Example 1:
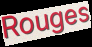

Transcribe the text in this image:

Rouges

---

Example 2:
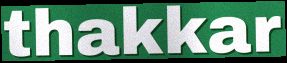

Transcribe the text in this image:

thakkar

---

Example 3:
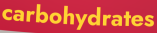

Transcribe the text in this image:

carbohydrates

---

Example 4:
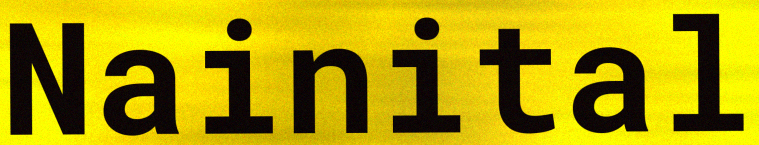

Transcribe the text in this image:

Nainital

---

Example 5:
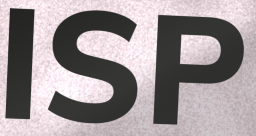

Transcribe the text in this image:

ISP